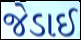
જેડાઈ